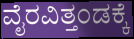
ವೈರವಿತ್ತಂಡಕ್ಕೆ